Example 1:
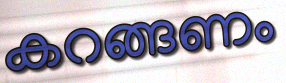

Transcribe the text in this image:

കറങ്ങണം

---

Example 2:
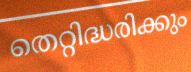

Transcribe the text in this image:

തെറ്റിദ്ധരിക്കും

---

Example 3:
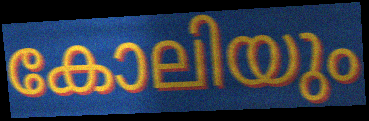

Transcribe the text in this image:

കോലിയും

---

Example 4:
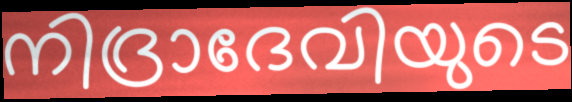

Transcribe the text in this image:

നിദ്രാദേവിയുടെ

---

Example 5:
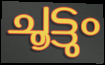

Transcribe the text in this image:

ചൂട്ടും